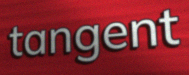
tangent